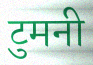
टुमनी